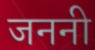
जननी